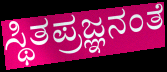
ಸ್ಥಿತಪ್ರಜ್ಞನಂತೆ